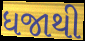
ધજાથી